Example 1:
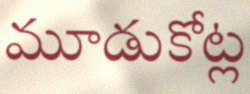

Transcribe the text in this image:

మూడుకోట్ల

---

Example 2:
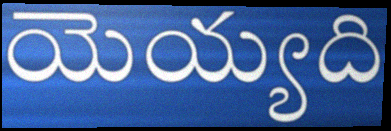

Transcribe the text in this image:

యెయ్యది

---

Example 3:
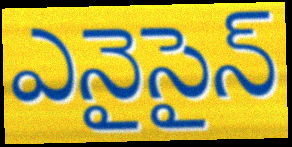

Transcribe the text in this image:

ఎనైసైన్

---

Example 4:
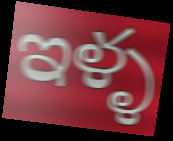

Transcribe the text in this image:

ఇళ్ళ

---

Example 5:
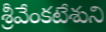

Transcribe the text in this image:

శ్రీవేంకటేశుని